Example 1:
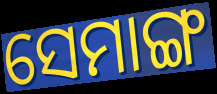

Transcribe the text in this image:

ସେମାଙ୍ଗ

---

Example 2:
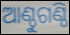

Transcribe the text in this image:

ଆଣ୍ଠୁଗଣ୍ଠି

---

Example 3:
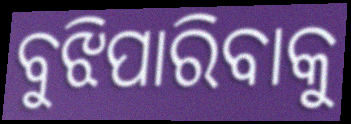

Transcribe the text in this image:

ବୁଝିପାରିବାକୁ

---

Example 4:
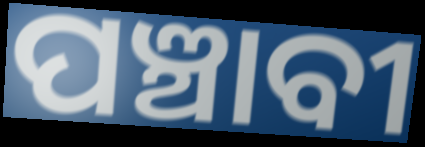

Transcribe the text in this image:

ପଞ୍ଚାବୀ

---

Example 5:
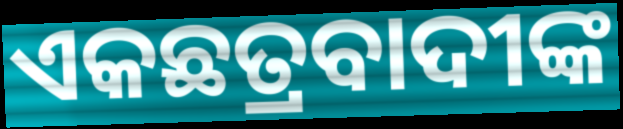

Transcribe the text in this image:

ଏକଛତ୍ରବାଦୀଙ୍କ